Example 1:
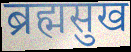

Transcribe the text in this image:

ब्रह्मसुख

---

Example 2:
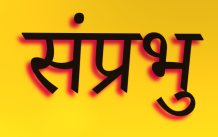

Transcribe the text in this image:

संप्रभु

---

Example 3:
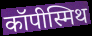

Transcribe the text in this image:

कॉपीस्मिथ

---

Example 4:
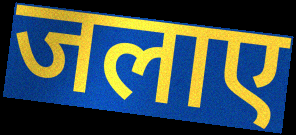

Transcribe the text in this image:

जलाए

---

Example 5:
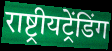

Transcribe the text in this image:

राष्ट्रीयट्रेंडिंग